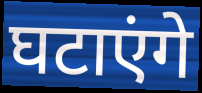
घटाएंगे